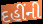
દહીંની